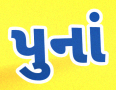
પુનાં